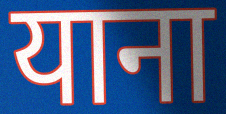
याना